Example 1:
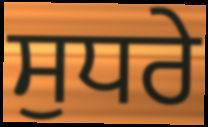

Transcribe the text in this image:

ਸੁਧਰੇ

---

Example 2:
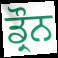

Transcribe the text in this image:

ਡ੍ਰੌਨ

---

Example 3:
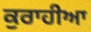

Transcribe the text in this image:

ਕੁਰਾਹੀਆ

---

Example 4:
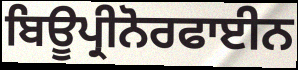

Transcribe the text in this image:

ਬਿਊਪ੍ਰੀਨੋਰਫਾਈਨ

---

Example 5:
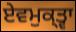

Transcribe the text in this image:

ਏਵਮੁਕ੍ਤ੍ਵਾ